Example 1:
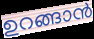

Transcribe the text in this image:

ഉറങ്ങാൻ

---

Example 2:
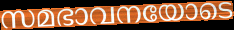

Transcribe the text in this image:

സമഭാവനയോടെ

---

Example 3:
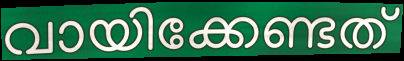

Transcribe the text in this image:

വായിക്കേണ്ടത്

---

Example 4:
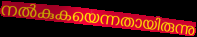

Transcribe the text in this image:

നൽകുകയെന്നതായിരുന്നു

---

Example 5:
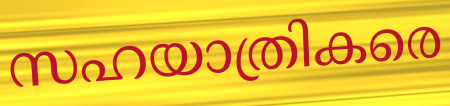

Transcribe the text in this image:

സഹയാത്രികരെ